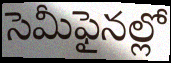
సెమీఫైనల్లో